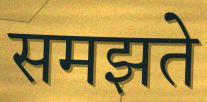
समझते